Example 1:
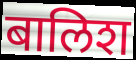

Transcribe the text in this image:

बालिश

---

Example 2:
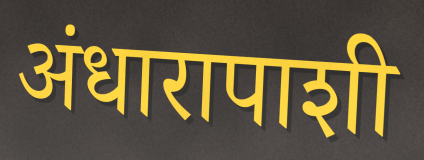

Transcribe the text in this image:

अंधारापाशी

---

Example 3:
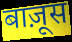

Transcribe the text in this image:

बाज़ूस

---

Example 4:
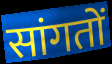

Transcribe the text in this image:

सांगतों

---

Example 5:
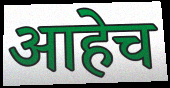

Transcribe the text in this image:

आहेच